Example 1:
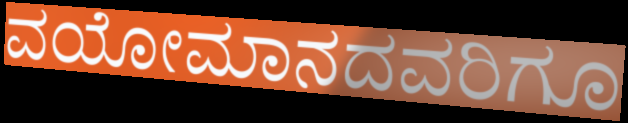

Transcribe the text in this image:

ವಯೋಮಾನದವರಿಗೂ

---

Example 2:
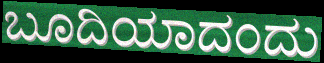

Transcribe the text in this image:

ಬೂದಿಯಾದಂದು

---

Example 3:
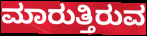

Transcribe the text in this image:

ಮಾರುತ್ತಿರುವ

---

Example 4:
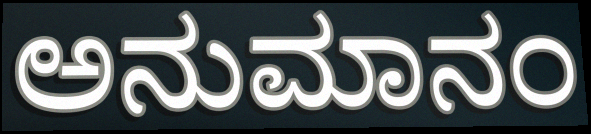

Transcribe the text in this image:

ಅನುಮಾನಂ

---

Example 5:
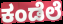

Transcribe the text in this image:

ಕಂಡೆಲೆ